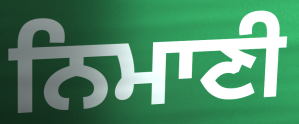
ਨਿਮਾਣੀ